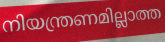
നിയന്ത്രണമില്ലാത്ത